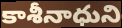
కాశీనాధుని